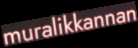
muralikkannan